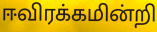
ஈவிரக்கமின்றி